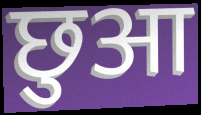
छुआ